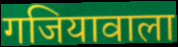
गजियावाला